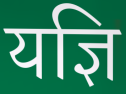
यज्ञि